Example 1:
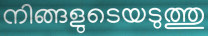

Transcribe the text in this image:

നിങ്ങളുടെയടുത്തു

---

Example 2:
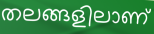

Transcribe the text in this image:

തലങ്ങളിലാണ്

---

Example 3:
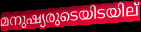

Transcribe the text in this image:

മനുഷ്യരുടെയിടയില്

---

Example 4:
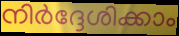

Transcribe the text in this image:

നിർദ്ദേശിക്കാം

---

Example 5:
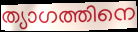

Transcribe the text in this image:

ത്യാഗത്തിനെ